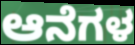
ಆನೆಗಳ